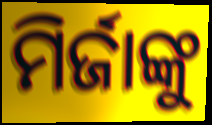
ମିର୍ଜାଙ୍କୁ